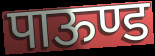
पाऊण्ड